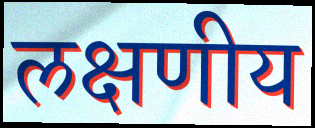
लक्षणीय